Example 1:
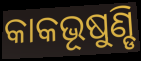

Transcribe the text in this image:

କାକଭୂଷୁଣ୍ଡି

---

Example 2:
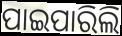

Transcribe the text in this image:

ପାଇପାରିଲି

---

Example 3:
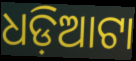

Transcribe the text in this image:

ଧଡ଼ିଆଟା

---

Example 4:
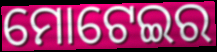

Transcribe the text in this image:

ମୋଟେଇର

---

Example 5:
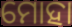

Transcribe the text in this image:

ମୋହା